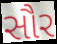
સૌર